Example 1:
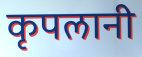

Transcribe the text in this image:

कृपलानी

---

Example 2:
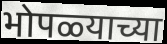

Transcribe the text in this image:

भोपळ्याच्या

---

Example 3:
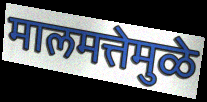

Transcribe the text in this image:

मालमत्तेमुळे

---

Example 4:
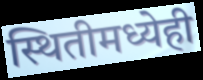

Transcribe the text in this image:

स्थितीमध्येही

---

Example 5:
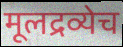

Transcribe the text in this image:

मूलद्रव्येच